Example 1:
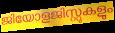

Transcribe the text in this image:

ജിയോളജിസ്റ്റുകളും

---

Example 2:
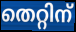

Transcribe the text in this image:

തെറ്റിന്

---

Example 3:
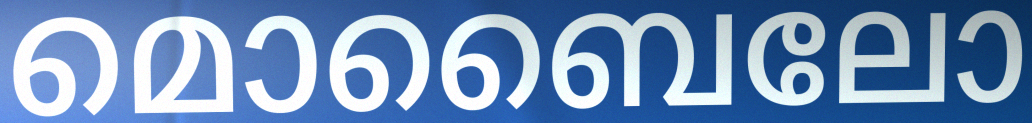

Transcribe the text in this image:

മൊബൈലോ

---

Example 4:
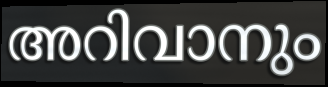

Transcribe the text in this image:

അറിവാനും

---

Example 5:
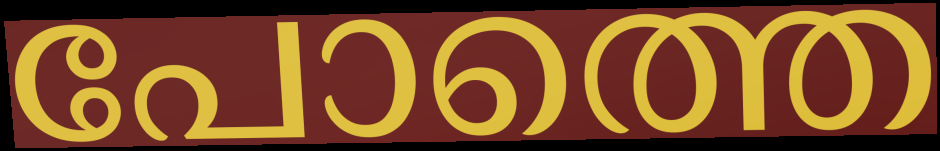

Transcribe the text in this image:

പോത്തെ